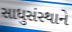
સાધુસંસ્થાને